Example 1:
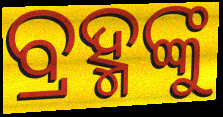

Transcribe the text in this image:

ବ୍ରହ୍ମଙ୍କୁ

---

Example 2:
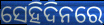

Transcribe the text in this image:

ସେହିଦିନରେ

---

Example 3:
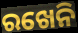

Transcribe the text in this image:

ରଖେନି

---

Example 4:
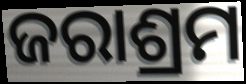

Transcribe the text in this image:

ଜରାଶ୍ରମ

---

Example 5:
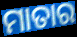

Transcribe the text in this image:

ମାତାର